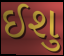
ઈશુ